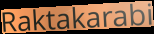
Raktakarabi